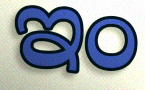
ఇం